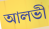
আলভী